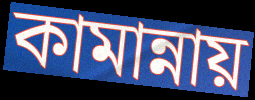
কামান্নায়